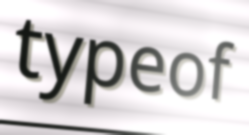
typeof